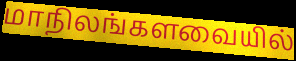
மாநிலங்களவையில்